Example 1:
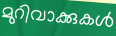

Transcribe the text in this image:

മുറിവാക്കുകൾ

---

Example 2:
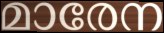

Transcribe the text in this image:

മാരേന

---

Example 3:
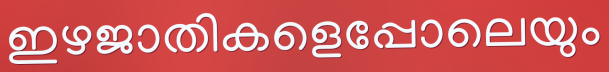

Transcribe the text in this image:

ഇഴജാതികളെപ്പോലെയും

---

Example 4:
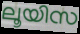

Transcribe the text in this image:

ലൂയിസ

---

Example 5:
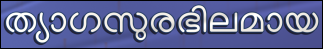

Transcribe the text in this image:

ത്യാഗസുരഭിലമായ